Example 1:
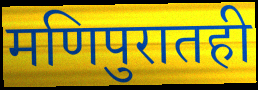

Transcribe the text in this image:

मणिपुरातही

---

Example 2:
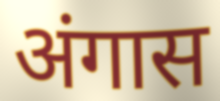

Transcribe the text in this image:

अंगास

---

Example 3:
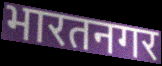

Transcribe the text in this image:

भारतनगर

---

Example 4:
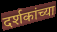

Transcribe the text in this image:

दर्शकांच्या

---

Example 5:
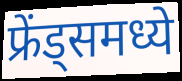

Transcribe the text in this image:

फ्रेंड्समध्ये